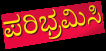
ಪರಿಭ್ರಮಿಸಿ